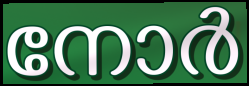
നോർ